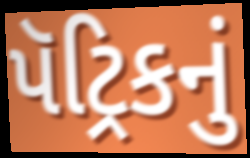
પૅટ્રિકનું